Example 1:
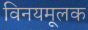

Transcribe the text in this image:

विनयमूलक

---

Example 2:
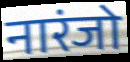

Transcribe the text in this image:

नारंजो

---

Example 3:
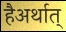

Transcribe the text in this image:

हैअर्थात्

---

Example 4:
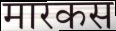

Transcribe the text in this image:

मारकस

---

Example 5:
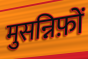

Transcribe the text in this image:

मुसन्निफ़ों